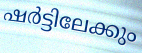
ഷർട്ടിലേക്കും